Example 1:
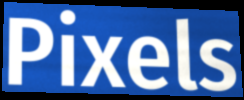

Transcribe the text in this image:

Pixels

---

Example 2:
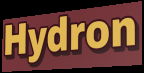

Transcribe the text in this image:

Hydron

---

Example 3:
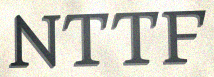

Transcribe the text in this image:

NTTF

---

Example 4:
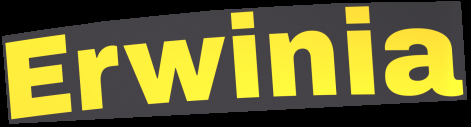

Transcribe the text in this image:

Erwinia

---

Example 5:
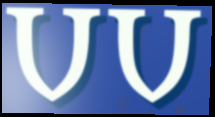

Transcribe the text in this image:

uu